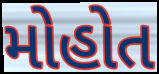
મોહોત